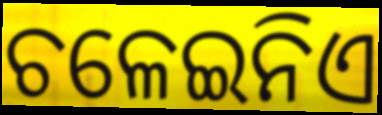
ଚଳେଇନିଏ